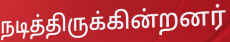
நடித்திருக்கின்றனர்